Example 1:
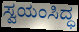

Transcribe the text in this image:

ಸ್ವಯಂಸಿದ್ಧ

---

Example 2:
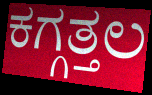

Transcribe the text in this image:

ಕಗ್ಗತ್ತಲ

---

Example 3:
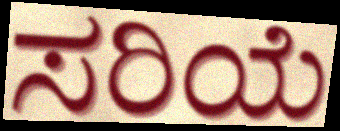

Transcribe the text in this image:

ಸರಿಯೆ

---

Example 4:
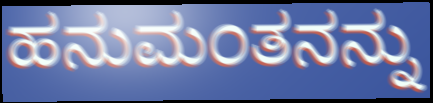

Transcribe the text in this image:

ಹನುಮಂತನನ್ನು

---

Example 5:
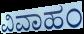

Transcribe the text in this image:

ವಿವಾಹಂ